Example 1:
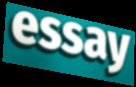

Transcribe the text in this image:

essay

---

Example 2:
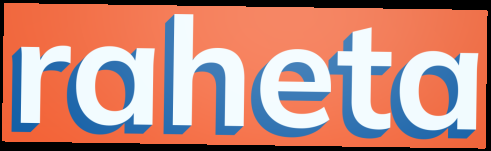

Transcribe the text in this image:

raheta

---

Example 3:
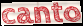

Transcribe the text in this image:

canto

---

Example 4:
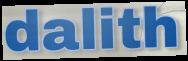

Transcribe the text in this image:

dalith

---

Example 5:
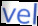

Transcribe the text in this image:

vel